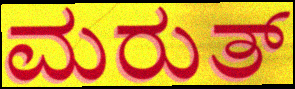
ಮರುತ್